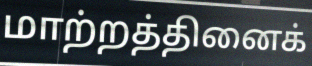
மாற்றத்தினைக்